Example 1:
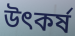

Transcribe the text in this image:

উৎকৰ্ষ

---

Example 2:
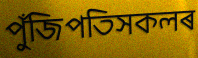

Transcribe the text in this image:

পুঁজিপতিসকলৰ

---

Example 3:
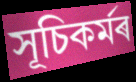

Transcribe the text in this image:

সূচিকৰ্মৰ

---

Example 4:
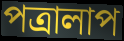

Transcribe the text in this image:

পত্ৰালাপ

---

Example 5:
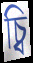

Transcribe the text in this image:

চ্বি